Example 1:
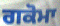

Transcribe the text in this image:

ਗਕੋਮਾ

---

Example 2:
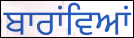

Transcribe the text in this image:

ਬਾਰਾਂਵਿਆਂ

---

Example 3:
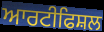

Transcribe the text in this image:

ਆਰਟੀਫਿਸ਼ਲ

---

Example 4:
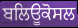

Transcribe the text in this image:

ਬਲਿਊਕੋਸਲ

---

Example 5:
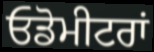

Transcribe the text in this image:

ਓਡੋਮੀਟਰਾਂ